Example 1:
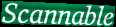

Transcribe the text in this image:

Scannable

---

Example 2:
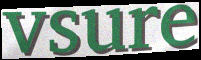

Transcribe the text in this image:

vsure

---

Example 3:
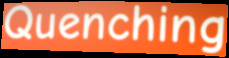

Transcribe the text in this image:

Quenching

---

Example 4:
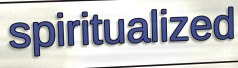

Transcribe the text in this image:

spiritualized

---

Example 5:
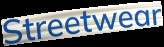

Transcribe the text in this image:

Streetwear